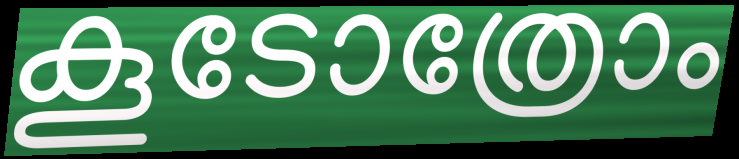
കൂടോത്രോം